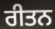
ਰੀਤਨ